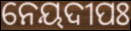
ନେୟଦୀପଃ